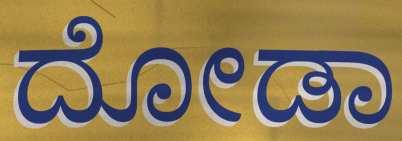
ದೋಡಾ